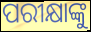
ପରୀକ୍ଷାଙ୍କୁ